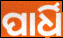
ପାର୍ଧି